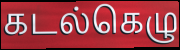
கடல்கெழு